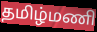
தமிழ்மணி